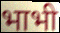
भाभी